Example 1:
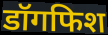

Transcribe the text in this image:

डॉगफिश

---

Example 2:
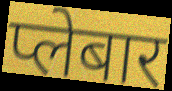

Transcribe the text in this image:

प्लेबार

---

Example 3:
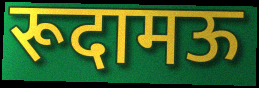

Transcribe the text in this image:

रूदामऊ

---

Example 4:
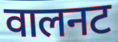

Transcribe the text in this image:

वालनट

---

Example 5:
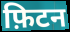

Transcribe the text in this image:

फ़िटन